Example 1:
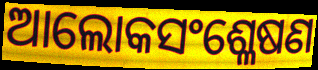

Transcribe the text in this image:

ଆଲୋକସଂଶ୍ଳେଷଣ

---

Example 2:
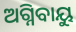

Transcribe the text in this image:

ଅଗ୍ନିବାୟୁ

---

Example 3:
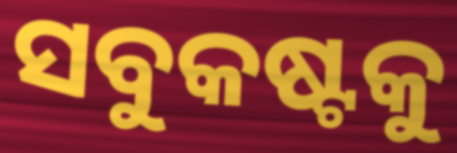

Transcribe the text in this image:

ସବୁକଷ୍ଟକୁ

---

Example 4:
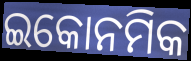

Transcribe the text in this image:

ଇକୋନମିକ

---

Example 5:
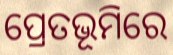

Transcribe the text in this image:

ପ୍ରେତଭୂମିରେ